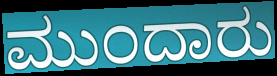
ಮುಂದಾರು